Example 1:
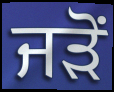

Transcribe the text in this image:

ਜਡ਼ੋਂ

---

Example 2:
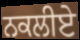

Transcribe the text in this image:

ਨਕਲੀਏ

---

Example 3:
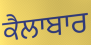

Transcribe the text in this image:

ਕੈਲਾਬਾਰ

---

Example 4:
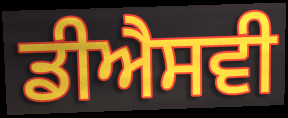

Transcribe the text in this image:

ਡੀਐਸਵੀ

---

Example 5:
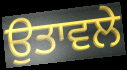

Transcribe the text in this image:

ਉਤਾਵਲੇ